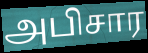
அபிசார